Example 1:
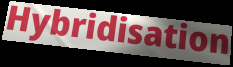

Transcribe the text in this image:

Hybridisation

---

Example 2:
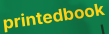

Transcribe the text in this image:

printedbook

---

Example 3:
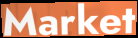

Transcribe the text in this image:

Market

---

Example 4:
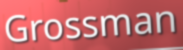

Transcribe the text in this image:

Grossman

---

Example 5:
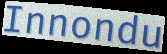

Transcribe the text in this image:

Innondu